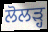
ਲੋਲੜ੍ਹ